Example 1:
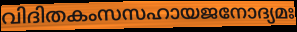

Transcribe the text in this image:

വിദിതകംസസഹായജനോദ്യമഃ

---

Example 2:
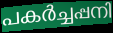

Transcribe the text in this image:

പകർച്ചപ്പനി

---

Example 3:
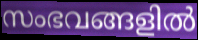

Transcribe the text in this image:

സംഭവങ്ങളിൽ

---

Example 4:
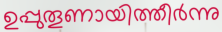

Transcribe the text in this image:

ഉപ്പുതൂണായിത്തീർന്നു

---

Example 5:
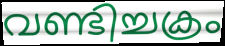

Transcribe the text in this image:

വണ്ടിച്ചക്രം